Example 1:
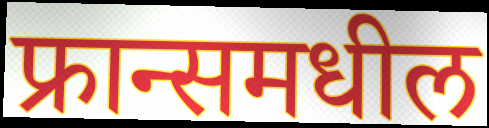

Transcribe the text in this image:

फ्रान्समधील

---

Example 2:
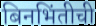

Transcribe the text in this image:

बिनभिंतीची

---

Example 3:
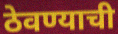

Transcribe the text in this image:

ठेवण्याची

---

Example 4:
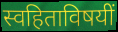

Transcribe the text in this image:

स्वहिताविषयीं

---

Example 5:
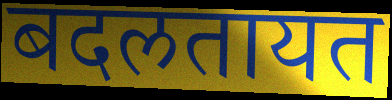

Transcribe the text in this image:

बदलतायत